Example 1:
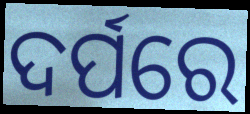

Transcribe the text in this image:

ଦର୍ପରେ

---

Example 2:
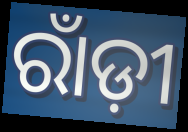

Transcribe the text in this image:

ରାଁଡ଼ୀ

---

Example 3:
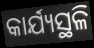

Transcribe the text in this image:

କାର୍ଯ୍ୟସ୍ଥଳି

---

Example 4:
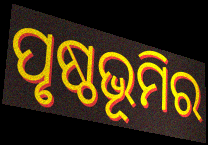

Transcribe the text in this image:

ପୃଷ୍ଠଭୂମିର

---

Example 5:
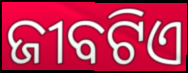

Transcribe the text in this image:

ଜୀବଟିଏ